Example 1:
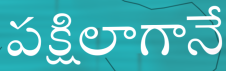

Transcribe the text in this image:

పక్షిలాగానే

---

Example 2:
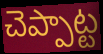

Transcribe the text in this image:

చెప్పాట్ట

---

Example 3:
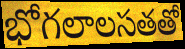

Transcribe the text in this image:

భోగలాలసతతో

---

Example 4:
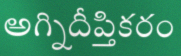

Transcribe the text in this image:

అగ్నిదీప్తికరం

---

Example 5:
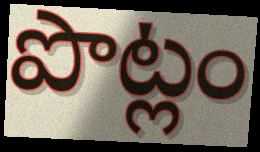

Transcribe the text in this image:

పొట్లం